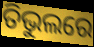
ତିଭୁଲରେ